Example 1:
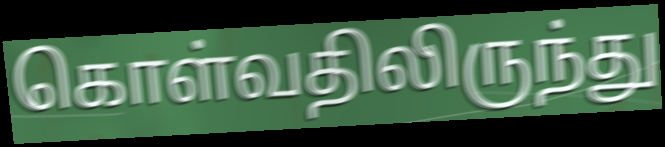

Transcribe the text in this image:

கொள்வதிலிருந்து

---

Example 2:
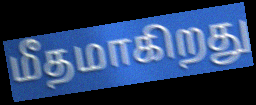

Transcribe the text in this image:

மீதமாகிறது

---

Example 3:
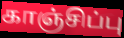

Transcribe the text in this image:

காஞ்சிப்பு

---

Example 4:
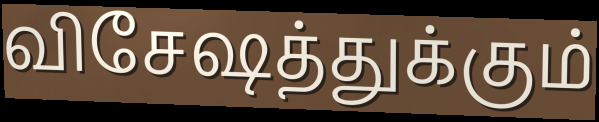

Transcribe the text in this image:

விசேஷத்துக்கும்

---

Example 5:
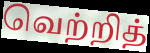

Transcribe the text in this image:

வெற்றித்